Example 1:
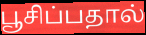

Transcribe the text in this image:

பூசிப்பதால்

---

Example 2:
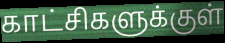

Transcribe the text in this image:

காட்சிகளுக்குள்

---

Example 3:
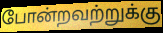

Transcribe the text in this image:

போன்றவற்றுக்கு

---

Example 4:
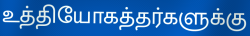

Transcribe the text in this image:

உத்தியோகத்தர்களுக்கு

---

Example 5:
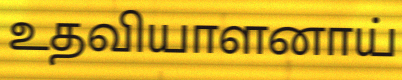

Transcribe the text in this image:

உதவியாளனாய்